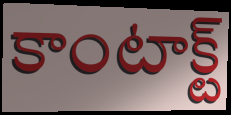
కాంటాక్ట్